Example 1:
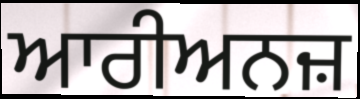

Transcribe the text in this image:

ਆਰੀਅਨਜ਼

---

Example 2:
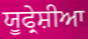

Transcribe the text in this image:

ਯੂਫ੍ਰੇਸ਼ੀਆ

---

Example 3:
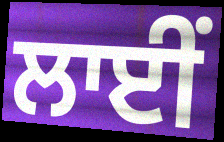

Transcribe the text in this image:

ਲਾਈਂ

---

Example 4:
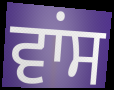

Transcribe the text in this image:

ਵਾਂਸ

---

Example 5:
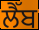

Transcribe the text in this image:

ਲੈੱਬ